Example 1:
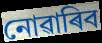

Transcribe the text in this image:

নোৱাৰিব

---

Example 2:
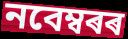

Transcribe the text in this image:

নবেম্বৰৰ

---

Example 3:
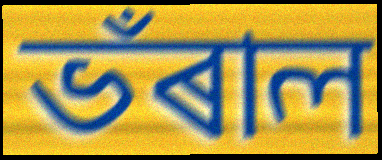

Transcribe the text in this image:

ভঁৰাল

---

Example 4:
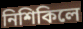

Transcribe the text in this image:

নিশিকিলে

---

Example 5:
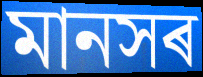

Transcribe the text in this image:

মানসৰ